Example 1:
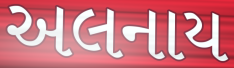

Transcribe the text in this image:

અલનાય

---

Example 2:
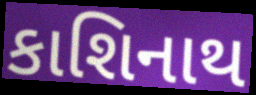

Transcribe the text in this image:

કાશિનાથ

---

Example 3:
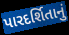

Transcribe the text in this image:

પારદર્શિતાનું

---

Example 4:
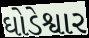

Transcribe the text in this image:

ઘોડેશ્વાર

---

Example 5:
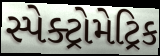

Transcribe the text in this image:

સ્પેક્ટ્રોમેટ્રિક